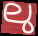
ലു